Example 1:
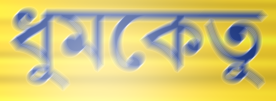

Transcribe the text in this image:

ধুমকেতু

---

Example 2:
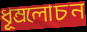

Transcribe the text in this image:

ধূম্রলোচন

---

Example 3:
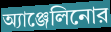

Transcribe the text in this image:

অ্যাঞ্জেলিনোর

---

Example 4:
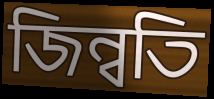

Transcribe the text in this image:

জিন্বতি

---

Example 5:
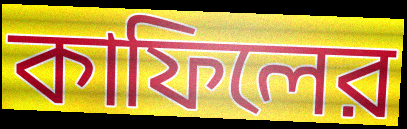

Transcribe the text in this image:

কাফিলের